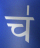
च॑